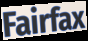
Fairfax